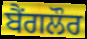
ਬੈਂਗਲੌਰ